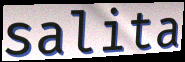
salita